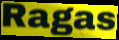
Ragas